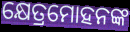
କ୍ଷେତ୍ରମୋହନଙ୍କ